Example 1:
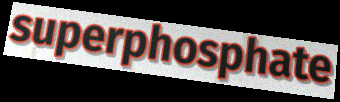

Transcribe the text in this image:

superphosphate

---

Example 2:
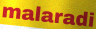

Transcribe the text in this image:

malaradi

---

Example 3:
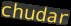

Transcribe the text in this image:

chudar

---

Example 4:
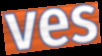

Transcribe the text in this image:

ves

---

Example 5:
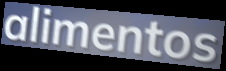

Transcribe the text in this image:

alimentos